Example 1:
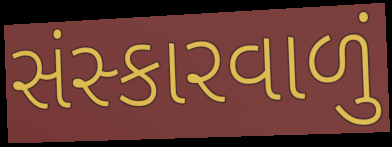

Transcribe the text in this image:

સંસ્કારવાળું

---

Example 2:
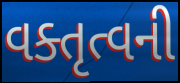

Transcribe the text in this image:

વક્તૃત્વની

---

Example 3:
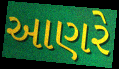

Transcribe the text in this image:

આણરે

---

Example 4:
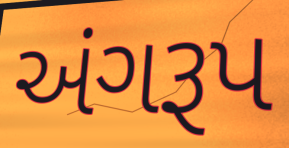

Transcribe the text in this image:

અંગરૂપ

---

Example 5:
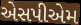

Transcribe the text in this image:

એસપીએમ